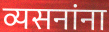
व्यसनांना